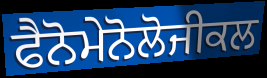
ਫੈਨੋਮੇਨੋਲੋਜੀਕਲ